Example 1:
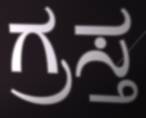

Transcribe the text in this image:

ಗ್ರಸ್ತ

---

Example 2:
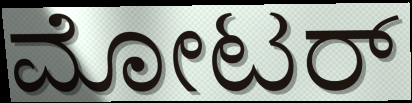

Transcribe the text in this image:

ಮೋಟರ್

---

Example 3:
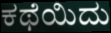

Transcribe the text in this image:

ಕಥೆಯಿದು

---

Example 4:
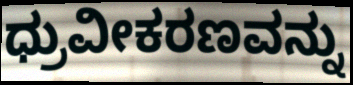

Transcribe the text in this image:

ಧ್ರುವೀಕರಣವನ್ನು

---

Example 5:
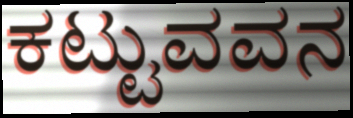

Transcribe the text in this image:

ಕಟ್ಟುವವನ